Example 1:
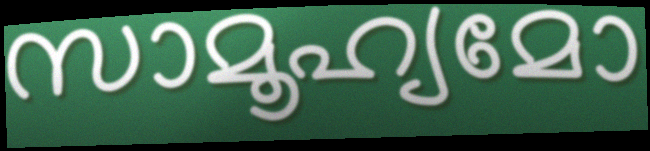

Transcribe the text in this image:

സാമൂഹ്യമോ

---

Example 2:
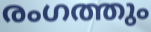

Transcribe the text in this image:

രംഗത്തും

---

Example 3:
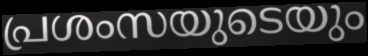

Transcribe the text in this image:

പ്രശംസയുടെയും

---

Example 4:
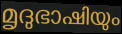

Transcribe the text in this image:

മൃദുഭാഷിയും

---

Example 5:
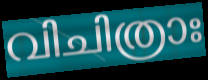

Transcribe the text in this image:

വിചിത്രാഃ